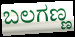
ಬಲಗಣ್ಣ